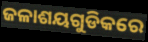
ଜଳାଶୟଗୁଡିକରେ